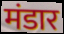
मंडार